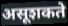
असूशकते